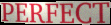
PERFECT